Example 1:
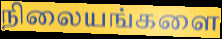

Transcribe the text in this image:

நிலையங்களை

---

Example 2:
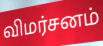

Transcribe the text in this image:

விமர்சனம்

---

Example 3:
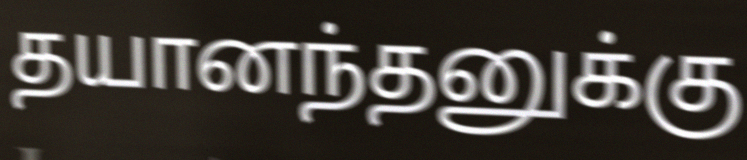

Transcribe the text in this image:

தயானந்தனுக்கு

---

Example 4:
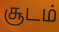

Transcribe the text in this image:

சூடம்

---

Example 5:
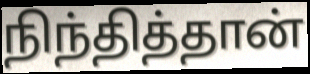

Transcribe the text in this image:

நிந்தித்தான்